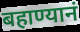
बहाण्यानं